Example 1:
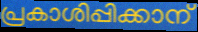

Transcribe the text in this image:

പ്രകാശിപ്പിക്കാന്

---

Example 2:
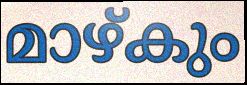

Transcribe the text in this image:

മാഴ്കും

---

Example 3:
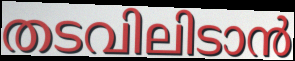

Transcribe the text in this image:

തടവിലിടാൻ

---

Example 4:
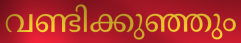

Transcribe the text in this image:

വണ്ടിക്കുഞ്ഞും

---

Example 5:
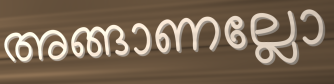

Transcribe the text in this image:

അങ്ങാണല്ലോ